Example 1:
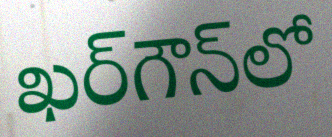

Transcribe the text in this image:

ఖర్‌గౌన్‌లో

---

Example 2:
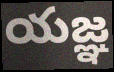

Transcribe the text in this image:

యజ్ఞ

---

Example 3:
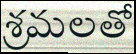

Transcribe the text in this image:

శ్రమలతో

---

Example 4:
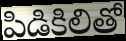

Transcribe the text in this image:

పిడికిలితో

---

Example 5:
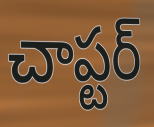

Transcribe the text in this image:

చాప్టర్